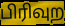
பிரிவுற